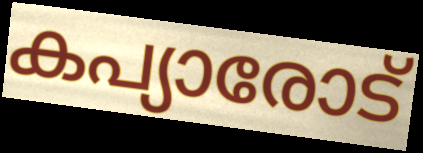
കപ്യാരോട്